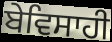
ਬੇਵਿਸਾਹੀ